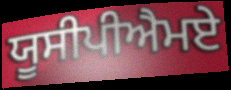
ਯੂਸੀਪੀਐਮਏ